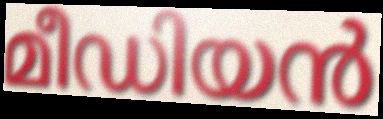
മീഡിയൻ